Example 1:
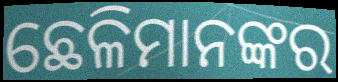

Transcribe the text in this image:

ଛେଳିମାନଙ୍କର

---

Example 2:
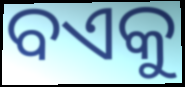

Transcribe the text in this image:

ବଏକୁ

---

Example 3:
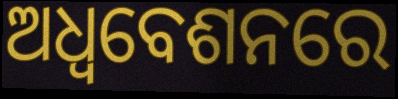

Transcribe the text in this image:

ଅଧ୍ଵବେଶନରେ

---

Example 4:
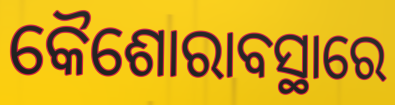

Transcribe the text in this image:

କୈଶୋରାବସ୍ଥାରେ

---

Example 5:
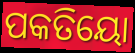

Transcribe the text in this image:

ପକତିୟୋ